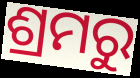
ଶ୍ରମରୁ